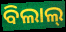
ବିଲାଲ୍